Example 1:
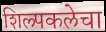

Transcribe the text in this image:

शिल्पकलेचा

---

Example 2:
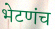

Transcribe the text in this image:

भेटणंच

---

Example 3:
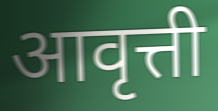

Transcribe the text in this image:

आवृत्ती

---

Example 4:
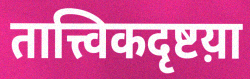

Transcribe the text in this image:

तात्त्विकदृष्टय़ा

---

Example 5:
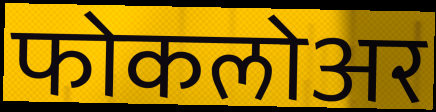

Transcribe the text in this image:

फोकलोअर